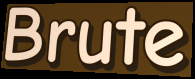
Brute